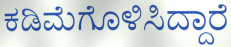
ಕಡಿಮೆಗೊಳಿಸಿದ್ದಾರೆ